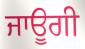
ਜਾਊਗੀ